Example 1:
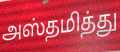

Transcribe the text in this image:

அஸ்தமித்து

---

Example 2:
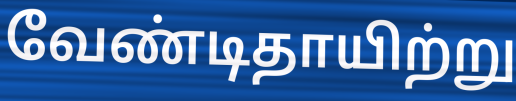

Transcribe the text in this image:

வேண்டிதாயிற்று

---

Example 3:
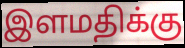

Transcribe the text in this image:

இளமதிக்கு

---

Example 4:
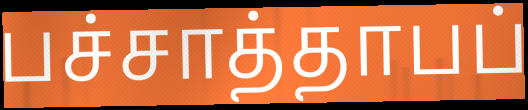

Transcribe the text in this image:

பச்சாத்தாபப்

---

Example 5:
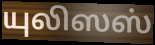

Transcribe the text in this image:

யுலிஸஸ்